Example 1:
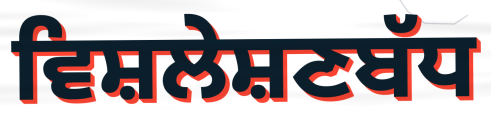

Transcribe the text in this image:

ਵਿਸ਼ਲੇਸ਼ਣਬੱਧ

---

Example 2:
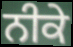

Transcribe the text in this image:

ਨੀਕੇ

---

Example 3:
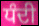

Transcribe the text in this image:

ਧੰਦੀ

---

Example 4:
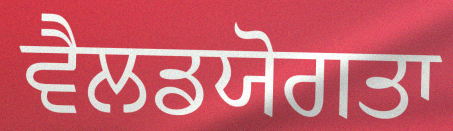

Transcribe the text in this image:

ਵੈਲਡਯੋਗਤਾ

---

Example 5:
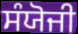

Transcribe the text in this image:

ਸੰਯੋਜੀ